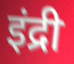
इंद्री